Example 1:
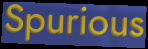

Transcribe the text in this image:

Spurious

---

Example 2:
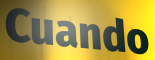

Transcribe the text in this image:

Cuando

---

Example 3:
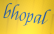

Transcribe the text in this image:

bhopal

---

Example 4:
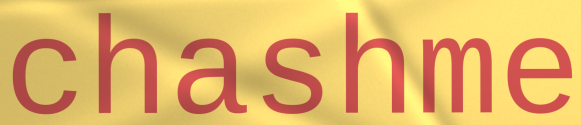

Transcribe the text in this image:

chashme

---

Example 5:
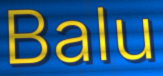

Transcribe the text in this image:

Balu